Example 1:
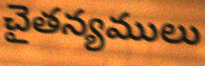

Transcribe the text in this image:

చైతన్యములు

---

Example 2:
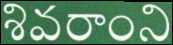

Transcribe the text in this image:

శివరాంని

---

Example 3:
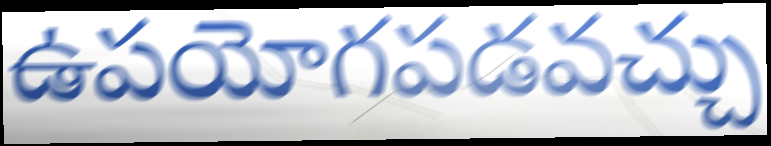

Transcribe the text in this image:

ఉపయోగపడవచ్చు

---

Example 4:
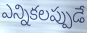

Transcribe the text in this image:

ఎన్నికలప్పుడే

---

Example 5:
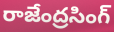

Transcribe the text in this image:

రాజేంద్రసింగ్